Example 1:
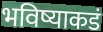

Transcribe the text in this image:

भविष्याकडं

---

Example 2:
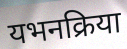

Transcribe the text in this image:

यभनक्रिया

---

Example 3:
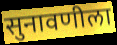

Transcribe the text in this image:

सुनावणीला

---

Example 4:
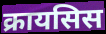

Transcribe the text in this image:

क्रायसिस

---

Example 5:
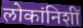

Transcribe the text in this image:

लोकांनिशीं